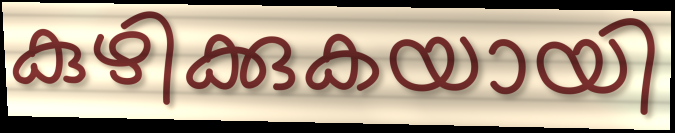
കുഴിക്കുകയായി